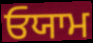
ਓਯਾਮ